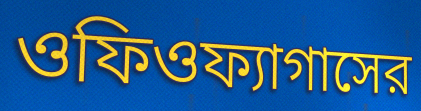
ওফিওফ্যাগাসের